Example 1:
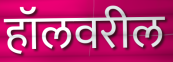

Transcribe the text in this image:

हॉलवरील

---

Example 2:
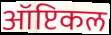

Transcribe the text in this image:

ऑप्टिकल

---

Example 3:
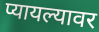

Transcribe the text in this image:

प्यायल्यावर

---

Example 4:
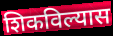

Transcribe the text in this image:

शिकविल्यास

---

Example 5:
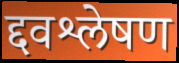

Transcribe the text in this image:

द्दवश्लेषण